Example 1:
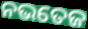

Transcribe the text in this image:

ନଭତେଜ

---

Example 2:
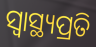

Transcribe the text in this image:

ସ୍ବାସ୍ଥ୍ୟପ୍ରତି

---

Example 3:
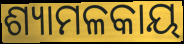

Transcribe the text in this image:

ଶ୍ୟାମଳକାୟ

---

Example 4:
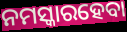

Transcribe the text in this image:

ନମସ୍କାରହେବା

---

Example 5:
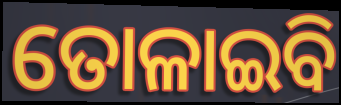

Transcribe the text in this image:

ତୋଳାଇବି